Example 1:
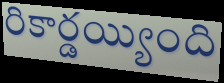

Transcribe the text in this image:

రికార్డయ్యింది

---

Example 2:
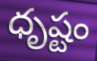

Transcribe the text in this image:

ధృష్టం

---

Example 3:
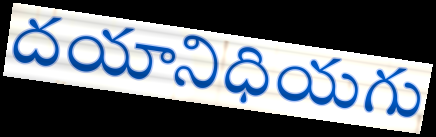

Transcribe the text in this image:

దయానిధియగు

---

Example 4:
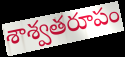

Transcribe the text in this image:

శాశ్వతరూపం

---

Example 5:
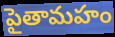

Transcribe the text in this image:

పైతామహం